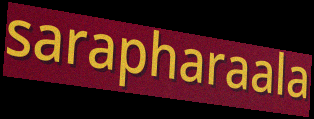
sarapharaala